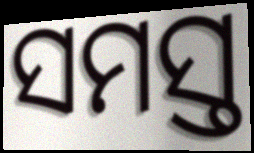
ସମସ୍ତ